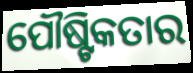
ପୌଷ୍ଟିକତାର